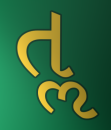
તૢ